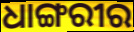
ଧାଙ୍ଗରୀର